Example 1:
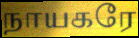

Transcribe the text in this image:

நாயகரே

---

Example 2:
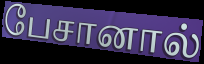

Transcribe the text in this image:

பேசானால்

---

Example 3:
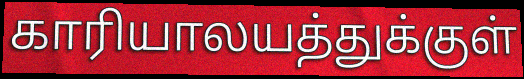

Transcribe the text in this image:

காரியாலயத்துக்குள்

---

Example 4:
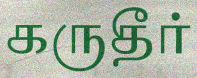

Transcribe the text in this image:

கருதீர்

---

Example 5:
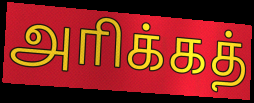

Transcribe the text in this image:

அரிக்கத்